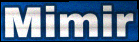
Mimir